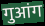
गुआंग